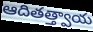
ఆదితత్త్వాయ